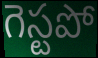
గెస్టపో